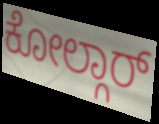
ಕೋಲ್ಗಾರ್